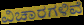
ವಿಚಾರಗಳಿವೆ